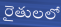
రైతులలో